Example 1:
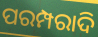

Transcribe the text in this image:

ପରମ୍ପରାଦି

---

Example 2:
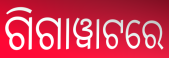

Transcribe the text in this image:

ଗିଗାୱାଟରେ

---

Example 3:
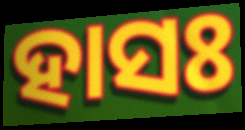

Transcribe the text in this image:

ହାସଃ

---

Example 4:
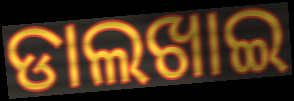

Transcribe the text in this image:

ଡାଲଖାଇ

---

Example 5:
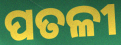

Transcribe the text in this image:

ପତଳୀ